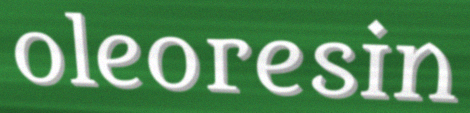
oleoresin